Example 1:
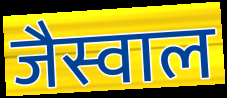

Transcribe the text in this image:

जैस्वाल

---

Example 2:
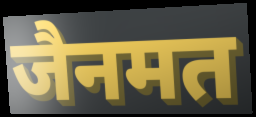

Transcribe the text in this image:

जैनमत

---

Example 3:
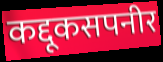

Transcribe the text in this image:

कद्दूकसपनीर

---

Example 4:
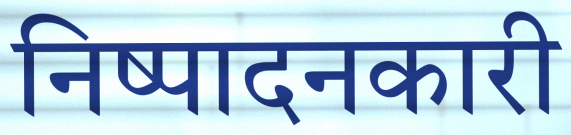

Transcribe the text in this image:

निष्पादनकारी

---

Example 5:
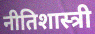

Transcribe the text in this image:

नीतिशास्त्री